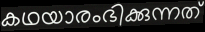
കഥയാരംഭിക്കുന്നത്